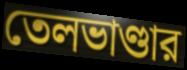
তেলভাণ্ডার